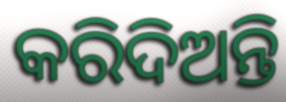
କରିଦିଅନ୍ତି